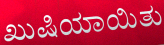
ಖುಷಿಯಾಯಿತು